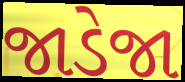
જાડેજા